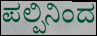
ಪಲ್ಪಿನಿಂದ